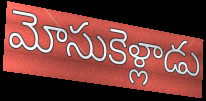
మోసుకెళ్లాడు